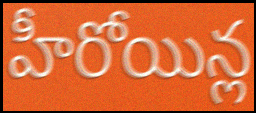
హీరోయిన్ల